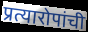
प्रत्यारोपांची